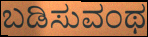
ಬಡಿಸುವಂಥ